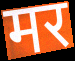
मर